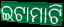
ଇଟାମାଟି